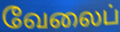
வேலைப்